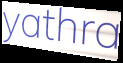
yathra